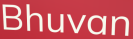
Bhuvan